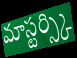
మాస్టర్స్కి